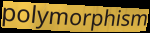
polymorphism